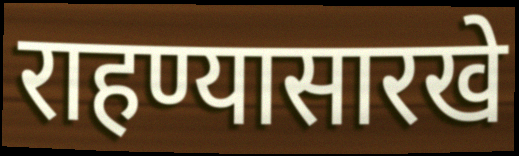
राहण्यासारखे